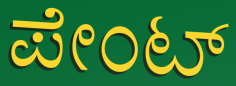
ಪೇಂಟ್